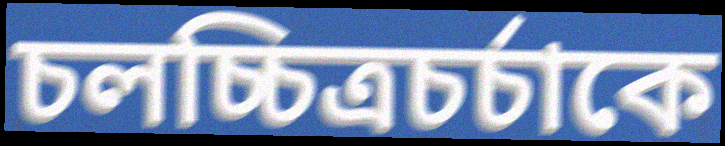
চলচ্চিত্রচর্চাকে